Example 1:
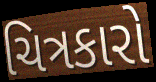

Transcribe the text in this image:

ચિત્રકારો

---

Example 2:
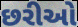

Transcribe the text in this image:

છરીઓ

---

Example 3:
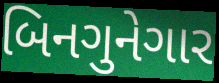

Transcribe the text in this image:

બિનગુનેગાર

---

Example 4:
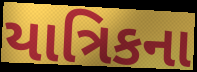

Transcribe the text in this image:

યાત્રિકના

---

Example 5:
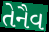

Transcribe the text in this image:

તેનૈવ